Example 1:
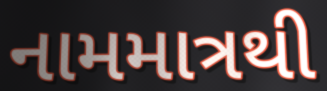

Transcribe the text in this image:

નામમાત્રથી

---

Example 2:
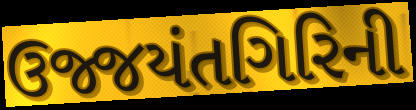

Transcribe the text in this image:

ઉજ્જયંતગિરિની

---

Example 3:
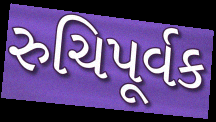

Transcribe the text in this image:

રુચિપૂર્વક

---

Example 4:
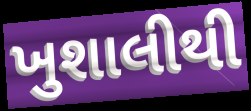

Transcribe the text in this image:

ખુશાલીથી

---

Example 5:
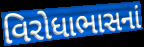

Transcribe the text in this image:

વિરોધાભાસનાં